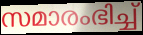
സമാരംഭിച്ച്